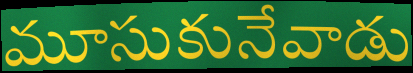
మూసుకునేవాడు